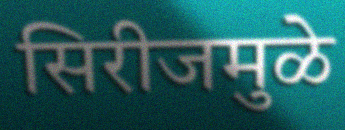
सिरीजमुळे